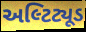
અલ્ટિટ્યૂડ